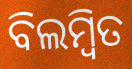
ବିଲମ୍ୱିତ